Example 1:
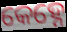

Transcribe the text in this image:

କେହ୍ନେ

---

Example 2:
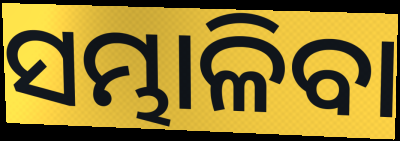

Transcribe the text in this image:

ସମ୍ଭାଳିବା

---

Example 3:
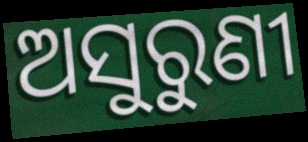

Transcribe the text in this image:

ଅସୁରୁଣୀ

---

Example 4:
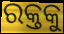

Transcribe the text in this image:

ରକ୍ତକୁ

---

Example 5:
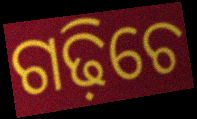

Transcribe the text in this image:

ଗଢ଼ିଚେ